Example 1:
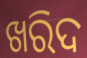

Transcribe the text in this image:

ଖରିଦ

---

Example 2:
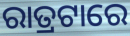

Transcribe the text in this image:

ରାତ୍ରଟାରେ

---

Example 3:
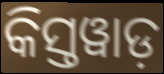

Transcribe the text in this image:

କିସ୍ତୱାଡ଼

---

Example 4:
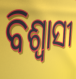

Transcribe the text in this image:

ବିଶ୍ୱାସୀ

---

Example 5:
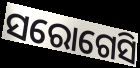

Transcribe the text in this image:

ସରୋଗେସି